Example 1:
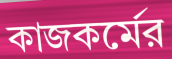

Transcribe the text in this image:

কাজকর্মের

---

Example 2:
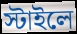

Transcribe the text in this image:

স্টাইলে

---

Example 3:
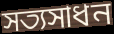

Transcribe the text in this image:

সত্যসাধন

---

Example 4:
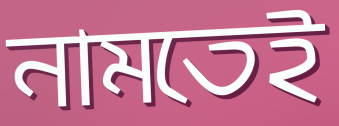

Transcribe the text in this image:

নামতেই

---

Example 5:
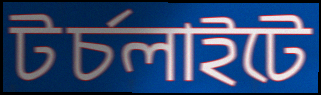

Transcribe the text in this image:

টর্চলাইটে